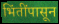
भिंतींपासून